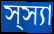
স্স্যা